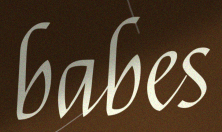
babes